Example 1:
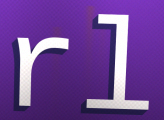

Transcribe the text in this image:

rl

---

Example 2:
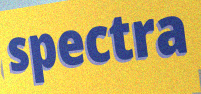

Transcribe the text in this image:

spectra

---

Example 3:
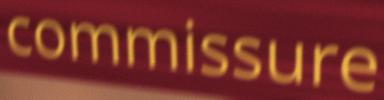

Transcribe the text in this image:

commissure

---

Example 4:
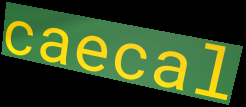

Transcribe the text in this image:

caecal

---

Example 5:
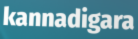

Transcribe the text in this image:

kannadigara